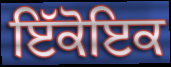
ਇੱਕੋਇਕ